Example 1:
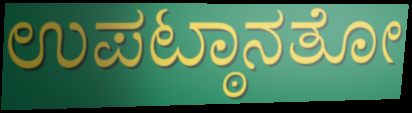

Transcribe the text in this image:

ಉಪಟ್ಠಾನತೋ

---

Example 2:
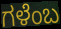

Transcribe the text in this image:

ಗಳೆಂಬ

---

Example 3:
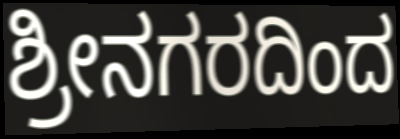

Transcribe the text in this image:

ಶ್ರೀನಗರದಿಂದ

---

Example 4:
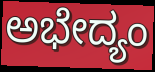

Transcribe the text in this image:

ಅಭೇದ್ಯಂ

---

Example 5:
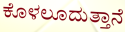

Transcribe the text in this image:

ಕೊಳಲೂದುತ್ತಾನೆ